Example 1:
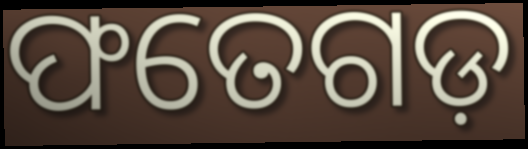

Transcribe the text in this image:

ଫତେଗଡ଼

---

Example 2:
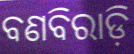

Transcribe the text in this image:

ବଣବିରାଡ଼ି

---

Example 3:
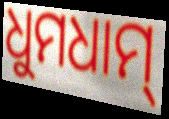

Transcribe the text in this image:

ଧୁମଧାମ୍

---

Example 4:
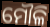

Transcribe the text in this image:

ମୌଳି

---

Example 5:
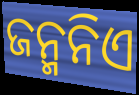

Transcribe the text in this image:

ଜନ୍ମନିଏ